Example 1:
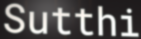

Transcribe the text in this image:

Sutthi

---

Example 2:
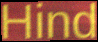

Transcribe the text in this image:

Hind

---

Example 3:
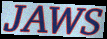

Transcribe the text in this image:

JAWS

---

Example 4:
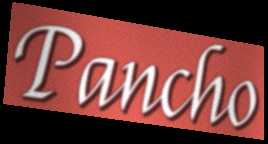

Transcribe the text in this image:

Pancho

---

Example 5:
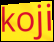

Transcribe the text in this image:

koji